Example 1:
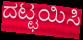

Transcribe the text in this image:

ದಟ್ಟಯಿಸಿ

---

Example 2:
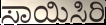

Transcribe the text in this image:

ಸಾಯಿಸಿರಿ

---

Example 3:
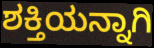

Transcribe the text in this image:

ಶಕ್ತಿಯನ್ನಾಗಿ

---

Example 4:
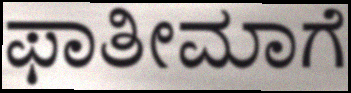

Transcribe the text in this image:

ಫಾತೀಮಾಗೆ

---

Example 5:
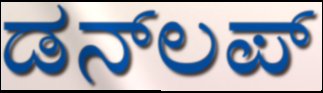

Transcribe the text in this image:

ಡನ್‌ಲಪ್